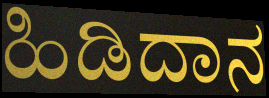
ಹಿಡಿದಾನ